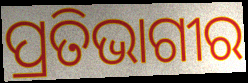
ପ୍ରତିଭାଗୀର